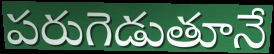
పరుగెడుతూనే